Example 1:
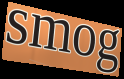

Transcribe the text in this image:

smog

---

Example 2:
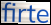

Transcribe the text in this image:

firte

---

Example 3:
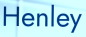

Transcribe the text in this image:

Henley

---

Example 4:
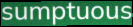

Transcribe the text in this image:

sumptuous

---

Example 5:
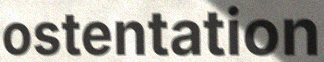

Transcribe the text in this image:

ostentation